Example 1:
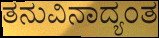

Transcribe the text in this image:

ತನುವಿನಾದ್ಯಂತ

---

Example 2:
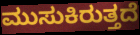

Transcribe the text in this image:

ಮುಸುಕಿರುತ್ತದೆ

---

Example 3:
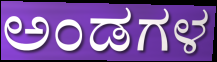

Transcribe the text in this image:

ಅಂಡಗಳ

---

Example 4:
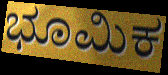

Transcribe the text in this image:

ಭೂಮಿಕ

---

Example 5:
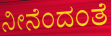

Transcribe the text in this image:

ನೀನೆಂದಂತೆ